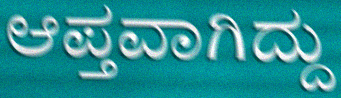
ಆಪ್ತವಾಗಿದ್ದು